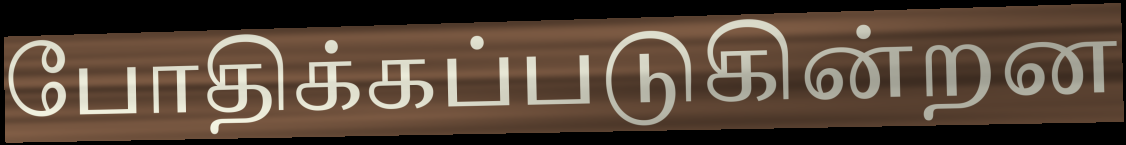
போதிக்கப்படுகின்றன